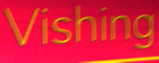
Vishing